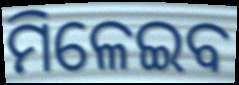
ମିଳେଇବ